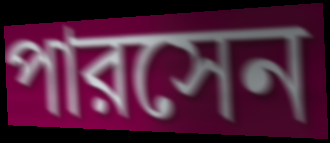
পারসেন